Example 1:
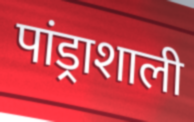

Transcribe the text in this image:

पांड्राशाली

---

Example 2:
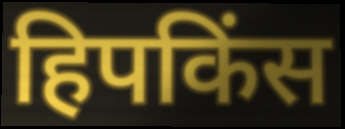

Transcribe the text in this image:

हिपकिंस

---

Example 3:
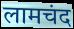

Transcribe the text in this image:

लामचंद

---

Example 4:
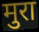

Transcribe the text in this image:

मुरा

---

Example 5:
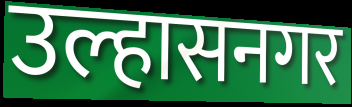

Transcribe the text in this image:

उल्हासनगर